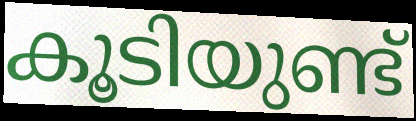
കൂടിയുണ്ട്